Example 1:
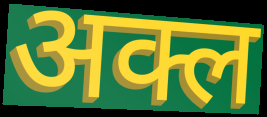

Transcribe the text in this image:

अक्ल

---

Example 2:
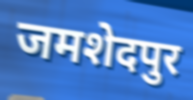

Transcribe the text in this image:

जमशेदपुर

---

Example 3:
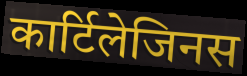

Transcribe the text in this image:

कार्टिलेजिनस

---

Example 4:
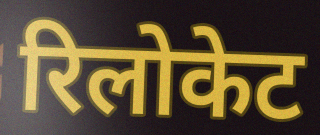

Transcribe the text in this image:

रिलोकेट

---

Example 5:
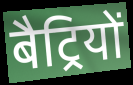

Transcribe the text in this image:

बैट्रियों